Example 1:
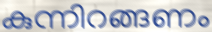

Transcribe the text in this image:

കുന്നിറങ്ങണം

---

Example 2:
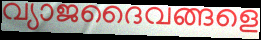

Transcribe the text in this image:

വ്യാജദൈവങ്ങളെ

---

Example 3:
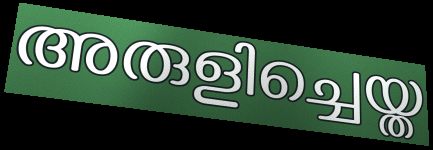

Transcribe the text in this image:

അരുളിച്ചെയ്ത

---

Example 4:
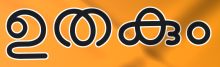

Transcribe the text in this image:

ഉതകും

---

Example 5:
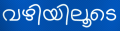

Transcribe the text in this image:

വഴിയിലൂടെ